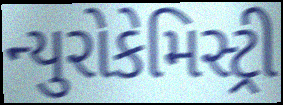
ન્યુરોકેમિસ્ટ્રી